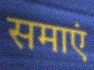
समाएं